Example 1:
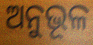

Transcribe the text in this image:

ଅନୁଭୂଳ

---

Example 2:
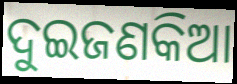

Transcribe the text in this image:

ଦୁଇଜଣକିଆ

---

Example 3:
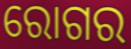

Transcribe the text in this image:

ରୋଗର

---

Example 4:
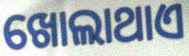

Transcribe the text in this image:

ଖୋଲାଥାଏ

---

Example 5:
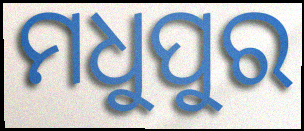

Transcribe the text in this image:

ମଧୁପୁର